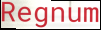
Regnum